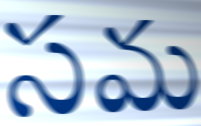
సమ